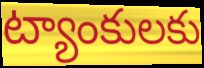
ట్యాంకులకు